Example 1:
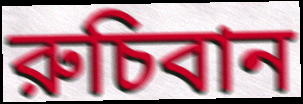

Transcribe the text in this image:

রুচিবান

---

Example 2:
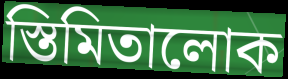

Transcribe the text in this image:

স্তিমিতালোক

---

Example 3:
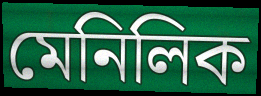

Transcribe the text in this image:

মেনিলিক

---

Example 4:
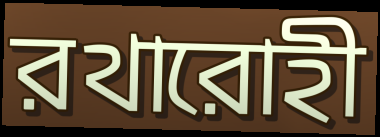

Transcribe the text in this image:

রথারোহী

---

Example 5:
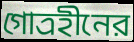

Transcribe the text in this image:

গোত্রহীনের